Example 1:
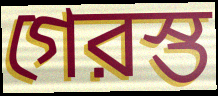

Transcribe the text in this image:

গেরস্ত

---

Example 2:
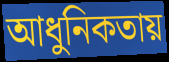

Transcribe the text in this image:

আধুনিকতায়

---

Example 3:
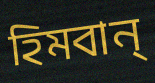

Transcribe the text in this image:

হিমবান্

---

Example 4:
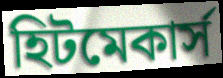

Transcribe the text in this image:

হিটমেকার্স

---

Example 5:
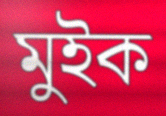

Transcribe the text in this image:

মুইক